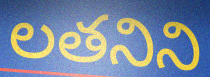
లతనిని